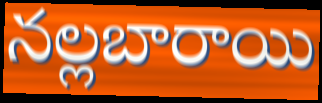
నల్లబారాయి